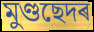
মুণ্ডছেদৰ